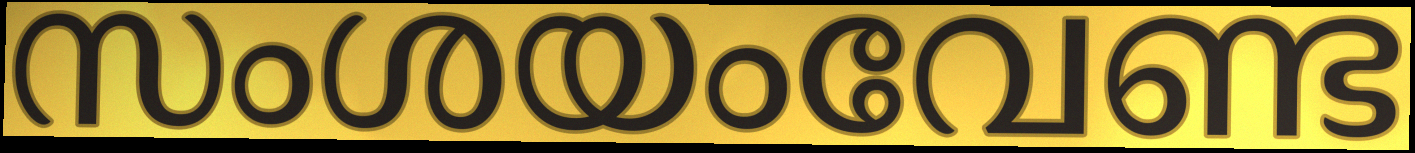
സംശയംവേണ്ട